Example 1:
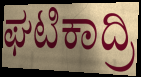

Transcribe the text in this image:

ಘಟಿಕಾದ್ರಿ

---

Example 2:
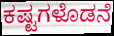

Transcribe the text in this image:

ಕಷ್ಟಗಳೊಡನೆ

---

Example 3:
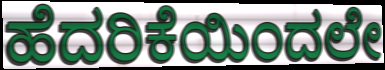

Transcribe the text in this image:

ಹೆದರಿಕೆಯಿಂದಲೇ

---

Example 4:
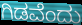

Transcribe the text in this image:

ಗಿಡವೆಂದು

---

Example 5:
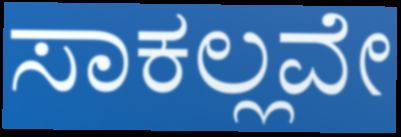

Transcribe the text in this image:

ಸಾಕಲ್ಲವೇ